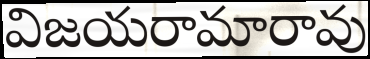
విజయరామారావు